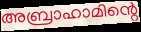
അബ്രാഹാമിന്റെ